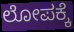
ಲೋಪಕ್ಕೆ